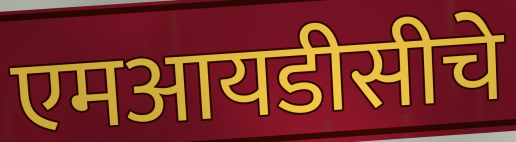
एमआयडीसीचे